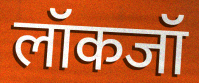
लॉकजॉ